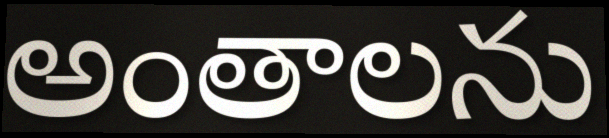
అంతాలను